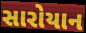
સારોયાન